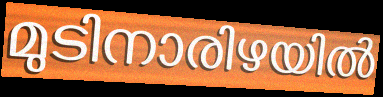
മുടിനാരിഴയിൽ